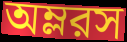
অম্লরস